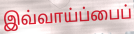
இவ்வாய்ப்பைப்